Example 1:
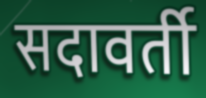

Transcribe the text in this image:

सदावर्ती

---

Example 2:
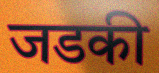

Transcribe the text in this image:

जडकी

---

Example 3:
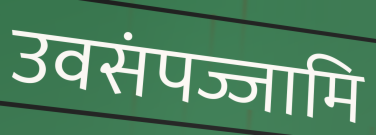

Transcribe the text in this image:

उवसंपज्जामि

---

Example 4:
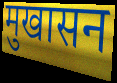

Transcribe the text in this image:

मुखासन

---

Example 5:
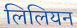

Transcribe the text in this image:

लिलियन